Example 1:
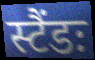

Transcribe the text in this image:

स्टैंडः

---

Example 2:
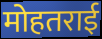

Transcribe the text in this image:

मोहतराई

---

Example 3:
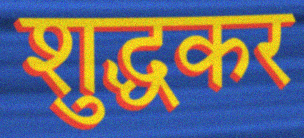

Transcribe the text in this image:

शुद्धकर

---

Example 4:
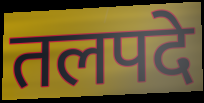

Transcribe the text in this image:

तलपदे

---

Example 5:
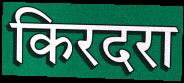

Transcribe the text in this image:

किरदरा